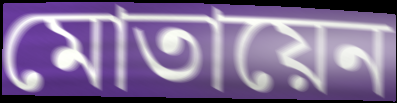
মোতায়েন